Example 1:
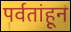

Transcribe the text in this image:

पर्वतांहून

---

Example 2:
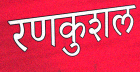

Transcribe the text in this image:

रणकुशल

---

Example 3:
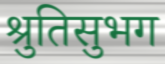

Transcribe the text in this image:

श्रुतिसुभग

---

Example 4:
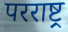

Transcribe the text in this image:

परराष्ट्र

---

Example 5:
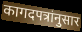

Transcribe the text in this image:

कागदपत्रांनुसार